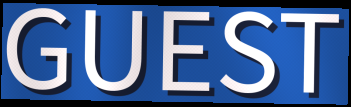
GUEST